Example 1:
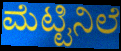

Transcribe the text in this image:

ಮೆಟ್ಟಿನಿಲೆ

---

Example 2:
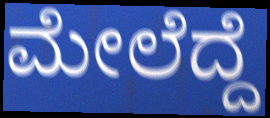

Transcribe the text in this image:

ಮೇಲೆದ್ದೆ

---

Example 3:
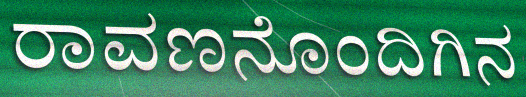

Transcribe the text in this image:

ರಾವಣನೊಂದಿಗಿನ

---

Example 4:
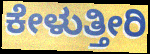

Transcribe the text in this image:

ಕೇಳುತ್ತೀರಿ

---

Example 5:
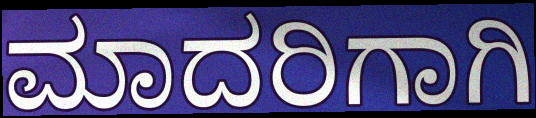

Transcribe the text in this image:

ಮಾದರಿಗಾಗಿ